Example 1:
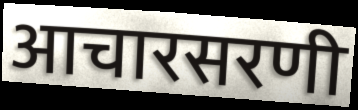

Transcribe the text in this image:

आचारसरणी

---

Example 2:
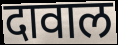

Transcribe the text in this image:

दावाल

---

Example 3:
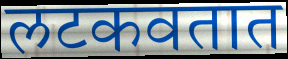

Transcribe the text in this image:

लटकवतात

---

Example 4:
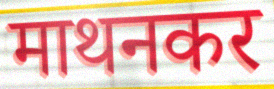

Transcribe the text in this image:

माथनकर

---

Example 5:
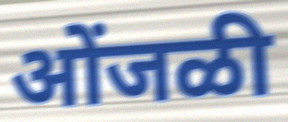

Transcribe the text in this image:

ओंजळी